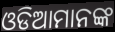
ଓଡିଆମାନଙ୍କ